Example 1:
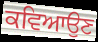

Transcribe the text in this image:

ਕਵਿਆਉਣ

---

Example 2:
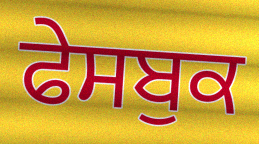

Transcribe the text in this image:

ਫੇਸਬੁਕ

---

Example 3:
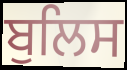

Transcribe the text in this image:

ਬੁਲਿਸ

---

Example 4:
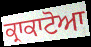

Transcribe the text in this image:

ਕ੍ਰਾਕਾਟੋਆ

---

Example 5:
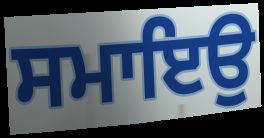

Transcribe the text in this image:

ਸਮਾਇਉ